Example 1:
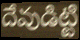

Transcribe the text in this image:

దేవుడిట్టి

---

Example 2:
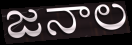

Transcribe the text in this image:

జనాల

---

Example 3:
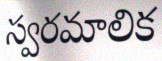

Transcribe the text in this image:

స్వరమాలిక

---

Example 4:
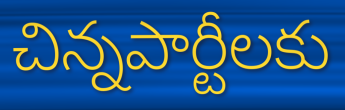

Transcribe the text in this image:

చిన్నపార్టీలకు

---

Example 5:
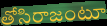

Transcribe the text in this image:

తోసిరాజంటూ